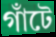
গাঁটে